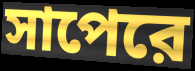
সাপেরে